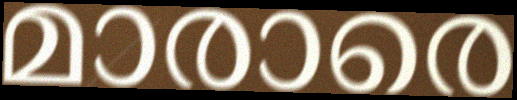
മാരാരെ